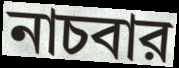
নাচবার